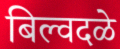
बिल्वदळे